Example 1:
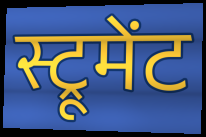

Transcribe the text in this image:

स्ट्रूमेंट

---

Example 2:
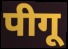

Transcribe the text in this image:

पीगू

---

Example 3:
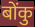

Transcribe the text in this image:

बोंकु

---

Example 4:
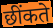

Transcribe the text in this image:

छींकते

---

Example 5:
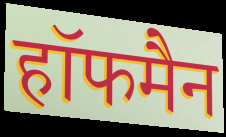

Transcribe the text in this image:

हॉफमैन